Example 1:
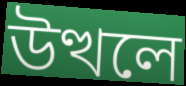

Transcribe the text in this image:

উত্থলে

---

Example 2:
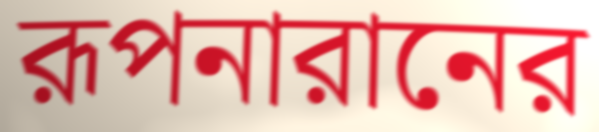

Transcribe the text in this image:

রূপনারানের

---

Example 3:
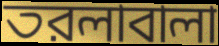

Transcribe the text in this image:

তরলাবালা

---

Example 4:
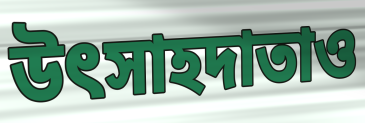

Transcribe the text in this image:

উৎসাহদাতাও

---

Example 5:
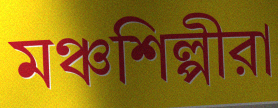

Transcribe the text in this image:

মঞ্চশিল্পীরা